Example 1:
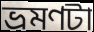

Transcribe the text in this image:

ভ্রমণটা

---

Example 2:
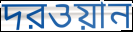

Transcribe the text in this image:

দরওয়ান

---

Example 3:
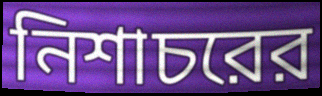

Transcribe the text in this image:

নিশাচরের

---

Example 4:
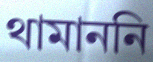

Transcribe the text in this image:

থামাননি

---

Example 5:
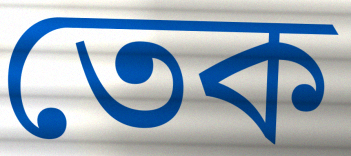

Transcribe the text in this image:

তেক